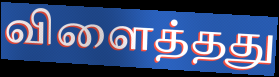
விளைத்தது